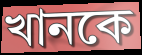
খানকে